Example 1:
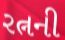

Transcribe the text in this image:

રત્નની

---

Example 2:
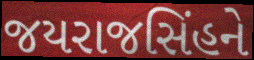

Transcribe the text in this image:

જયરાજસિંહને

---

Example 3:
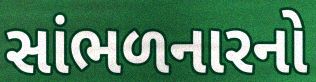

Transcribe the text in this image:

સાંભળનારનો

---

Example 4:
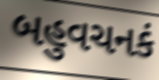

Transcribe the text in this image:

બહુવચનકં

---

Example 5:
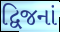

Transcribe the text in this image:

દ્વિજનાં